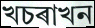
খচৰাখন